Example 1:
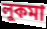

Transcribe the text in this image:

লুকমা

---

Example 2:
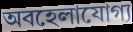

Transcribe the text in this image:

অবহেলাযোগ্য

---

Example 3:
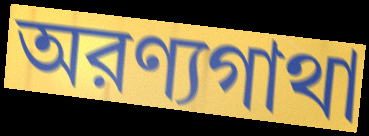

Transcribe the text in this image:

অরণ্যগাথা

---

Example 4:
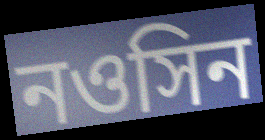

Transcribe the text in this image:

নওসিন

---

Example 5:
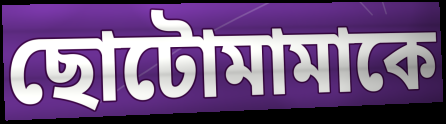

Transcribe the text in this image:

ছোটোমামাকে